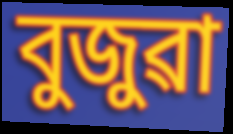
বুজুৱা